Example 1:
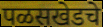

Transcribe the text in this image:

पळसखेडचे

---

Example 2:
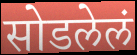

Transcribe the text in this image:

सोडलेलं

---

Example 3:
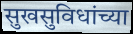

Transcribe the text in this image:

सुखसुविधांच्या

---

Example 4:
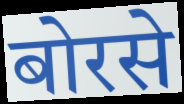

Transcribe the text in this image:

बोरसे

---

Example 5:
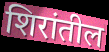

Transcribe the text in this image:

शिरांतील